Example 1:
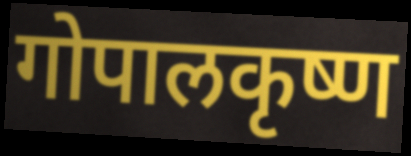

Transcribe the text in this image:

गोपालकृष्ण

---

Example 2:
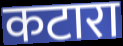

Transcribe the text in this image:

कटारा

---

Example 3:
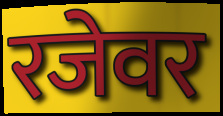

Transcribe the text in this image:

रजेवर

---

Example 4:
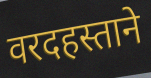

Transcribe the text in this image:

वरदहस्ताने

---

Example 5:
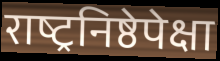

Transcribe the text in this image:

राष्ट्रनिष्ठेपेक्षा